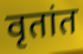
वृतांत